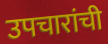
उपचारांची